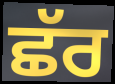
ਛੱਰ